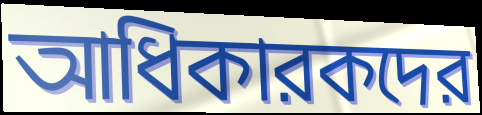
আধিকারকদের